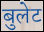
बुलेट